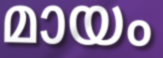
മായം